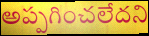
అప్పగించలేదని